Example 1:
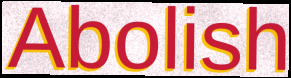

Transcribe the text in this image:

Abolish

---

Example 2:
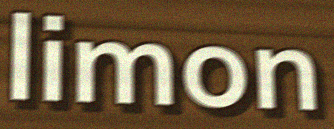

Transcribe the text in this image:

limon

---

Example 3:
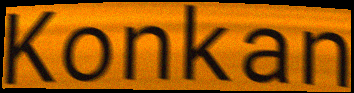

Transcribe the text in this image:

Konkan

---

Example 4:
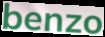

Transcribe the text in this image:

benzo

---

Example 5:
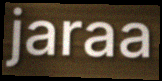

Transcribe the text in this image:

jaraa